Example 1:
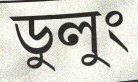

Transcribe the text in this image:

ডুলুং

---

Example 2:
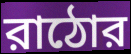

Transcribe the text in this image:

রাঠোর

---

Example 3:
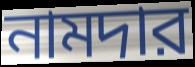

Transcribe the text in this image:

নামদার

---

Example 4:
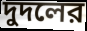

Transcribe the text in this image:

দুদলের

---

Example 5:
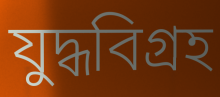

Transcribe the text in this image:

যুদ্ধবিগ্রহ